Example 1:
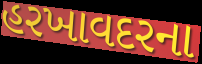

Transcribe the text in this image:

હરખાવદરના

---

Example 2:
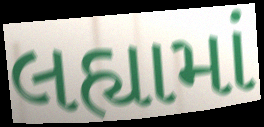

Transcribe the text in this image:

લહ્યામાં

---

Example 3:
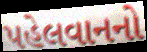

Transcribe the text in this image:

પહેલવાનનો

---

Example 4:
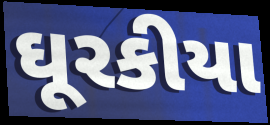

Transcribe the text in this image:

ઘૂરકીયા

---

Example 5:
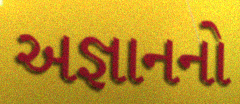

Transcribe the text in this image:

અજ્ઞાનનો